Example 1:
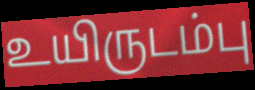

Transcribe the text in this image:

உயிருடம்பு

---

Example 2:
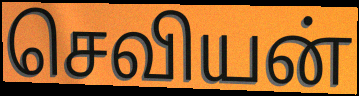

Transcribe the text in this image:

செவியன்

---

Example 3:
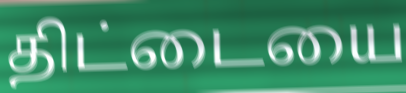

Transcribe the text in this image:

திட்டையை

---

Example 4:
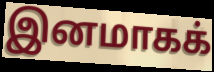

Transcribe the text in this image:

இனமாகக்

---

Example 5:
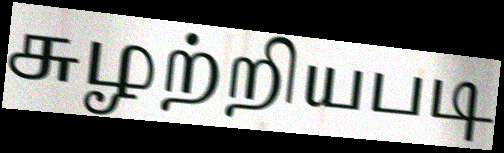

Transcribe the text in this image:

சுழற்றியபடி